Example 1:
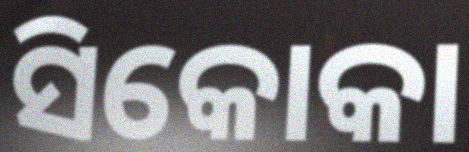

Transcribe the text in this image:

ସିକୋକା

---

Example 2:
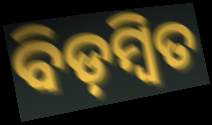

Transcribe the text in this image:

ବିଡ଼ମ୍ଵିତ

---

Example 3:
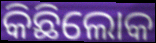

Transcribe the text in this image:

କିଛିଲୋକ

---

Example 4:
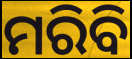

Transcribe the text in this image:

ମରିବି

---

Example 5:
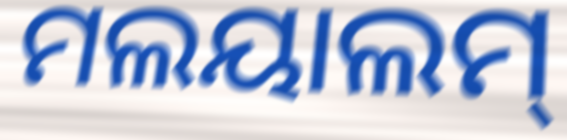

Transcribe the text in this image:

ମଲୟାଲମ୍